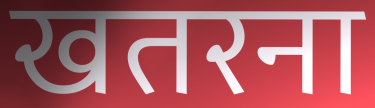
खतरना